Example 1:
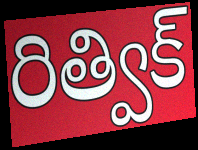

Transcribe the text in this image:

రిత్విక్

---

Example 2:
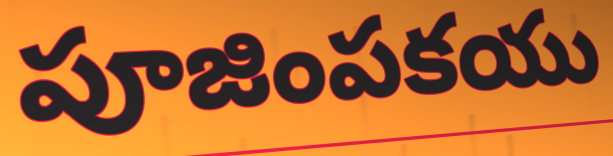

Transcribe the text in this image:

పూజింపకయు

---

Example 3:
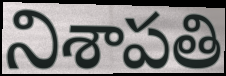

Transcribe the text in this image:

నిశాపతి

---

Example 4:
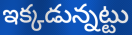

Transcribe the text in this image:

ఇక్కడున్నట్టు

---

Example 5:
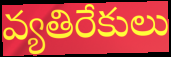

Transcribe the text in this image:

వ్యతిరేకులు